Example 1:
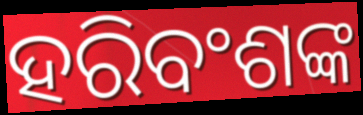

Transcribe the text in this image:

ହରିବଂଶଙ୍କ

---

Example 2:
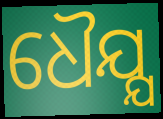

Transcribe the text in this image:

ଧୈଯ୍ଯ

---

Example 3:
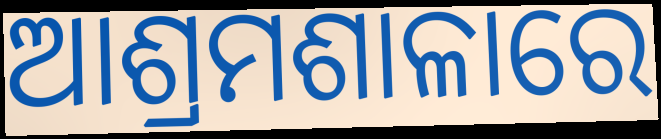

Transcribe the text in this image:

ଆଶ୍ରମଶାଳାରେ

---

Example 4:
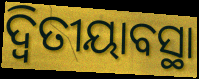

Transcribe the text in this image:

ଦ୍ବିତୀୟାବସ୍ଥା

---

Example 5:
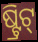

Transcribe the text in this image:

ଷ୍ଟ୍ରିଟ୍